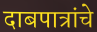
दाबपात्रांचे